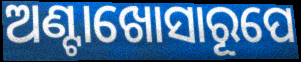
ଅଣ୍ଟାଖୋସାରୂପେ